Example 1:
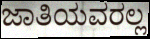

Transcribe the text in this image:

ಜಾತಿಯವರಲ್ಲ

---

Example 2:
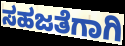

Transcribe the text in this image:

ಸಹಜತೆಗಾಗಿ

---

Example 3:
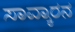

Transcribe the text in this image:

ಸಾವ್ಕಾರನ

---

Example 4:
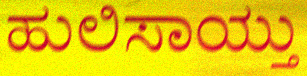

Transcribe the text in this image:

ಹುಲಿಸಾಯ್ತು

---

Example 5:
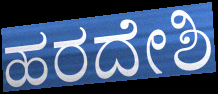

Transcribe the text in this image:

ಹರದೇಶಿ